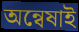
অন্বেষাই